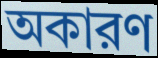
অকারণ